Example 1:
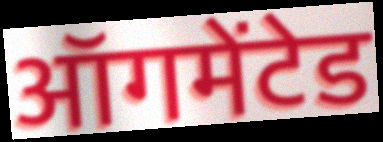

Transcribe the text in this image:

ऑगमेंटेड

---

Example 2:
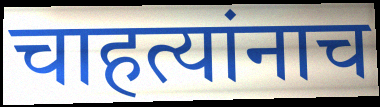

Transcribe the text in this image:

चाहत्यांनाच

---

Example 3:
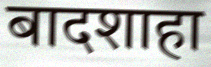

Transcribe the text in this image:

बादशाहा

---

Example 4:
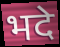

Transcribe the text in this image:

भदे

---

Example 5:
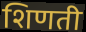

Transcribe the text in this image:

शिणती